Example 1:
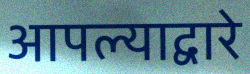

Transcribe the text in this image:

आपल्याद्वारे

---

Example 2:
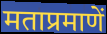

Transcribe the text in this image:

मताप्रमाणें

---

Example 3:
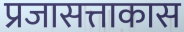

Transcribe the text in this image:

प्रजासत्ताकास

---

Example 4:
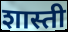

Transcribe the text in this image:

शास्ती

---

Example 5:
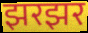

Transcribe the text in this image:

झरझर